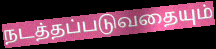
நடத்தப்படுவதையும்